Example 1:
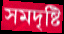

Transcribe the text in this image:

সমদৃষ্টি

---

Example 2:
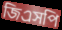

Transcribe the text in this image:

জিএসপি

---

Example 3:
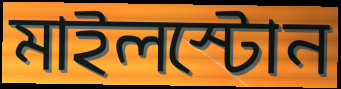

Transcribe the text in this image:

মাইলস্টোন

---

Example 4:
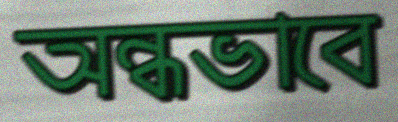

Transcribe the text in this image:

অন্ধভাবে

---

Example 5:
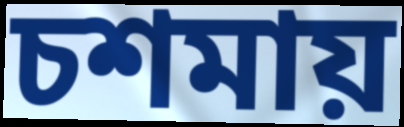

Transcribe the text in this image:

চশমায়